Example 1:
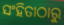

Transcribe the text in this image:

ସଂହିତାଠାରୁ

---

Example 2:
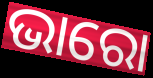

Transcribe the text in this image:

ଭାରୋ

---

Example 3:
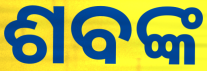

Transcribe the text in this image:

ଶବଙ୍କ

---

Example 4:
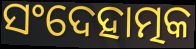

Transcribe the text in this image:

ସଂଦେହାତ୍ମକ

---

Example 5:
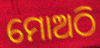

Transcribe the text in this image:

ମୋଅଠି